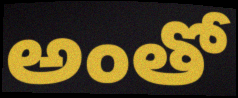
అంతో